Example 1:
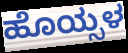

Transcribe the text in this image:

ಹೊಯ್ಸಳ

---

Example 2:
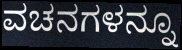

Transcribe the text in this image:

ವಚನಗಳನ್ನೂ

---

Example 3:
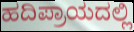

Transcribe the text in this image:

ಹದಿಪ್ರಾಯದಲ್ಲಿ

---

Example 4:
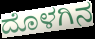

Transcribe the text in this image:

ದೊಳಗಿನ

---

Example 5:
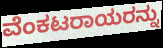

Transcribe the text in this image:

ವೆಂಕಟರಾಯರನ್ನು